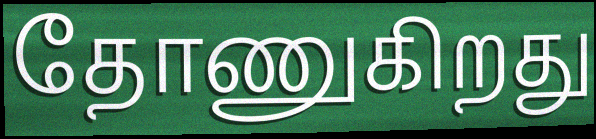
தோணுகிறது